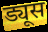
ड्यूस